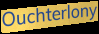
Ouchterlony